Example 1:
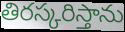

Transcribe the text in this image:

తిరస్కరిస్తాను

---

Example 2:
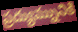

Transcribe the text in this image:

ప్రద్యుమ్నునికి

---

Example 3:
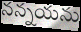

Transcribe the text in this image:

నన్నయను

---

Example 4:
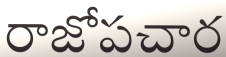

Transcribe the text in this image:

రాజోపచార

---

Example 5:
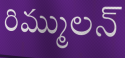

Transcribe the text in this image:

రిమ్ములన్